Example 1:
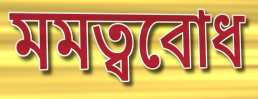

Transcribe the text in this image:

মমত্ববোধ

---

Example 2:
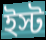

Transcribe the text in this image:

ইস্ট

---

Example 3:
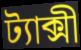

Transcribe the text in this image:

ট্যাক্সী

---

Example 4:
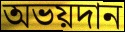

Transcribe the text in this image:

অভয়দান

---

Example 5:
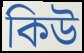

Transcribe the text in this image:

কিউ